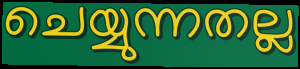
ചെയ്യുന്നതല്ല